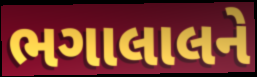
ભગાલાલને